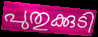
പുതുക്കുടി